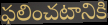
ఫలించటానికి